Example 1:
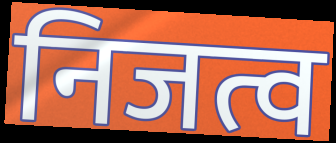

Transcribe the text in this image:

निजत्व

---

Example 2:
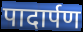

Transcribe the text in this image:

पादार्पण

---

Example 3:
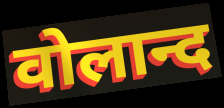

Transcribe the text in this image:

वोलान्द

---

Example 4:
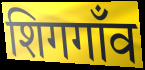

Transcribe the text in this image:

शिगगाँव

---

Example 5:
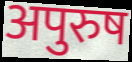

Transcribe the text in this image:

अपुरुष